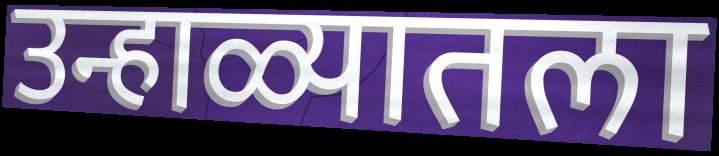
उन्हाळ्यातला